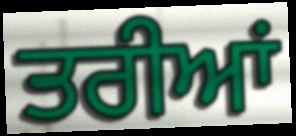
ਤਰੀਆਂ